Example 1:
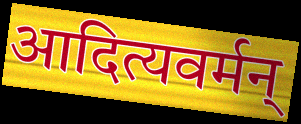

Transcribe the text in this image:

आदित्यवर्मन्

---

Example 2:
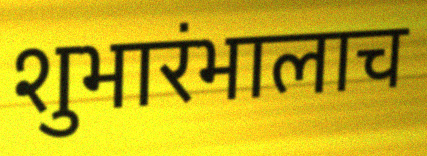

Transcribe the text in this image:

शुभारंभालाच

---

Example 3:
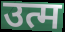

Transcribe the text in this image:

उत्म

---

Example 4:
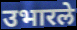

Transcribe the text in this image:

उभारले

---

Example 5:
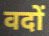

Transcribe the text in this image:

वदों